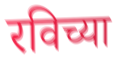
रविच्या